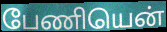
பேணியென்